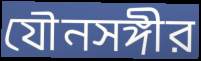
যৌনসঙ্গীর